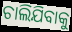
ଚାଲିଯିବାକୁ